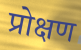
प्रोक्षण